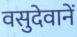
वसुदेवानें